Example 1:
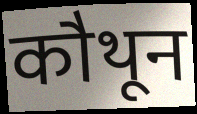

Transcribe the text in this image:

कौथून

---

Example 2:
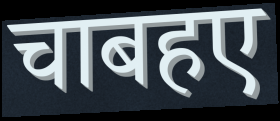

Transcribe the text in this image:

चाबहए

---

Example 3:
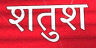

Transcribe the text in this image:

शतुश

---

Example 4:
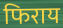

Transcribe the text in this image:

फिराय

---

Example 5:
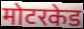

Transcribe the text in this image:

मोटरकेड